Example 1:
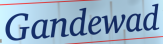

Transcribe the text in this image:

Gandewad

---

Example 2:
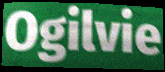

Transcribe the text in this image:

Ogilvie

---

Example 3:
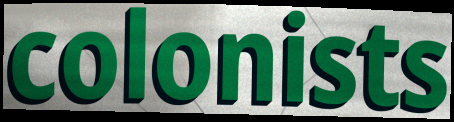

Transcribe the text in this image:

colonists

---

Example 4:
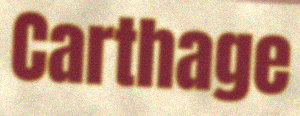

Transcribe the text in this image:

Carthage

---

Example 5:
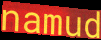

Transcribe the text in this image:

namud